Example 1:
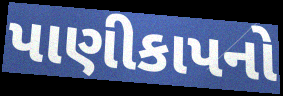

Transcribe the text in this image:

પાણીકાપનો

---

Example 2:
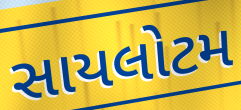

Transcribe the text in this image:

સાયલોટમ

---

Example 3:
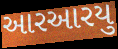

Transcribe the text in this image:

આરઆરયુ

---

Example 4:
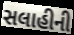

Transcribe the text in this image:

સલાહીની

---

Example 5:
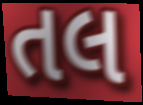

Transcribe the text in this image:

તલ